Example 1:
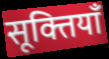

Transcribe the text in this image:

सूक्तियाँ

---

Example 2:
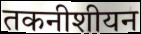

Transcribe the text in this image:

तकनीशीयन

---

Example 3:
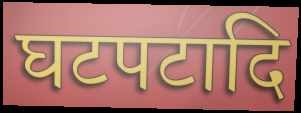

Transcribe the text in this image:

घटपटादि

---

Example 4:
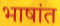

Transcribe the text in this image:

भाषांत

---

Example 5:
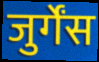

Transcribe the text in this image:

जुर्गेंस